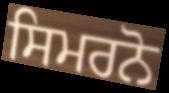
ਸਿਮਰਨੋ